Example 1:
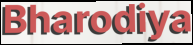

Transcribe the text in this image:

Bharodiya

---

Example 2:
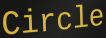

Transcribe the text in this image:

Circle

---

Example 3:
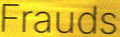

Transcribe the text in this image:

Frauds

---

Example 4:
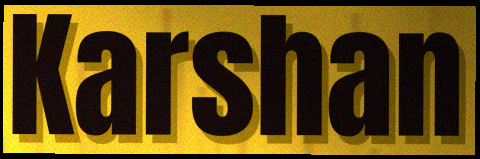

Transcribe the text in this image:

Karshan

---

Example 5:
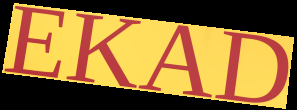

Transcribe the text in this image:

EKAD